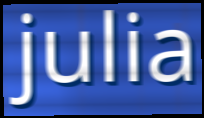
julia